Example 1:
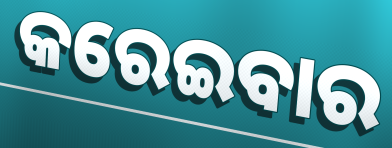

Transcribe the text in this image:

କରେଇବାର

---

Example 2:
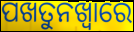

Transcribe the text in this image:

ପଖତୁନଖ୍ୱାରେ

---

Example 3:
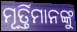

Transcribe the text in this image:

ମୂର୍ତ୍ତିମାନଙ୍କୁ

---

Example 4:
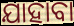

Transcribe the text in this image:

ଯାହାବା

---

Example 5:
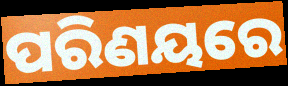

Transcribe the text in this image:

ପରିଣୟରେ